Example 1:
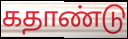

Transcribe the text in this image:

கதாண்டு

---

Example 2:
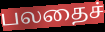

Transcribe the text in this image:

பலதைச்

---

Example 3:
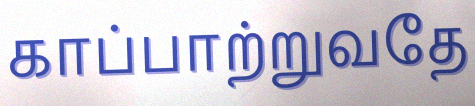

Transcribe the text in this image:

காப்பாற்றுவதே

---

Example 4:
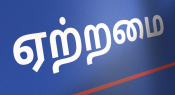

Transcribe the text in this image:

ஏற்றமை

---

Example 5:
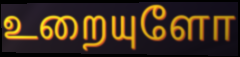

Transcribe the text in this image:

உறையுளோ